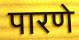
पारणे